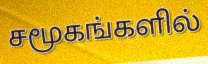
சமூகங்களில்